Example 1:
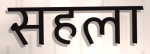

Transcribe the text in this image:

सहला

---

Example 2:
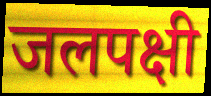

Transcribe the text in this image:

जलपक्षी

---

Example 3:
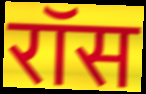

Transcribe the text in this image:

रॉस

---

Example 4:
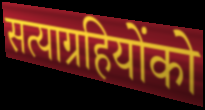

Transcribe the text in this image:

सत्याग्रहियोंको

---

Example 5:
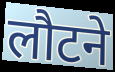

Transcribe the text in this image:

लौटने